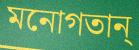
মনোগতান্